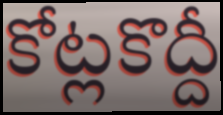
కోట్లకొద్దీ